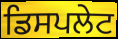
ਡਿਸਪਲੇਟ